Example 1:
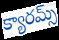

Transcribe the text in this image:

క్యారమ్స్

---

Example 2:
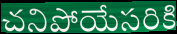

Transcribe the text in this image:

చనిపోయేసరికి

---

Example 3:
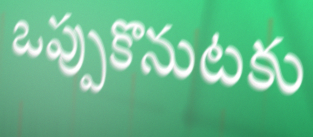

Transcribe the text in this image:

ఒప్పుకొనుటకు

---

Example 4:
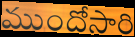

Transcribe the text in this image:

ముందోసారి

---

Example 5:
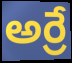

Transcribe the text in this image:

అర్రే